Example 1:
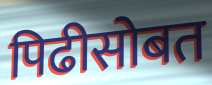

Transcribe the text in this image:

पिढीसोबत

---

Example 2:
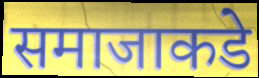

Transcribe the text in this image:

समाजाकडे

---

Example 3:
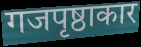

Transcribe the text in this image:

गजपृष्ठाकार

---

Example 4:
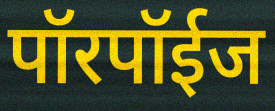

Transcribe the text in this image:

पॉरपॉईज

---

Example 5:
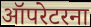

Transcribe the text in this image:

ऑपरेटरना